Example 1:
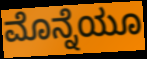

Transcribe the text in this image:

ಮೊನ್ನೆಯೂ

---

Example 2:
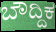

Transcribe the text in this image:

ಬೌದ್ದಿಕ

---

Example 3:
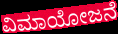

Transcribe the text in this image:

ವಿಮಾಯೋಜನೆ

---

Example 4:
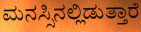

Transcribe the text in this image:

ಮನಸ್ಸಿನಲ್ಲಿಡುತ್ತಾರೆ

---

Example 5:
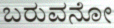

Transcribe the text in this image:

ಬರುವನೋ